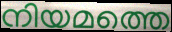
നിയമത്തെ